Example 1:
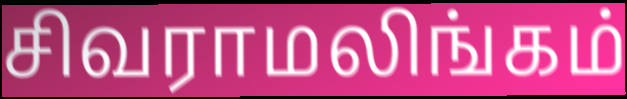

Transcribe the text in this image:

சிவராமலிங்கம்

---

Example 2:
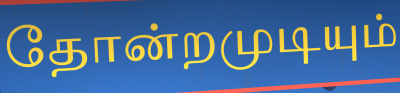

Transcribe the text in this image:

தோன்றமுடியும்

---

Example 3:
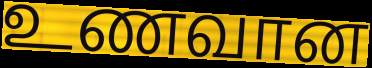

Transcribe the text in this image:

உணவான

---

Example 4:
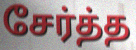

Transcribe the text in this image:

சேர்த்த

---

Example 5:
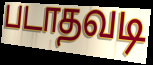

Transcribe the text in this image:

படாதவடி